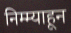
निम्म्याहून